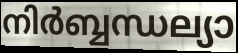
നിർബ്ബന്ധല്യാ